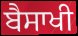
ਬੈਸਾਖੀ